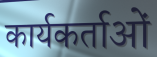
कार्यकर्ताओं